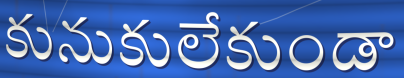
కునుకులేకుండా